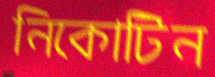
নিকোটিন